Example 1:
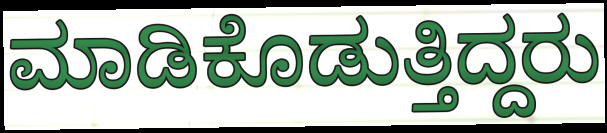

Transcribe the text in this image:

ಮಾಡಿಕೊಡುತ್ತಿದ್ದರು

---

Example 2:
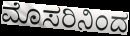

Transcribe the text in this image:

ಮೊಸರಿನಿಂದ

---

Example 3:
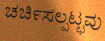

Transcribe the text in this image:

ಚರ್ಚಿಸಲ್ಪಟ್ಟವು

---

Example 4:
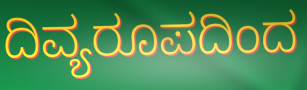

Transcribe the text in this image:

ದಿವ್ಯರೂಪದಿಂದ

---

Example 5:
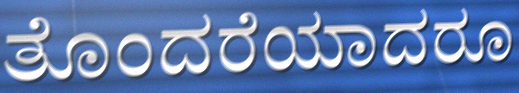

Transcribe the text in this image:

ತೊಂದರೆಯಾದರೂ